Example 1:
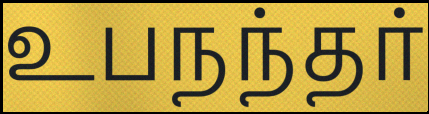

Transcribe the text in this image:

உபநந்தர்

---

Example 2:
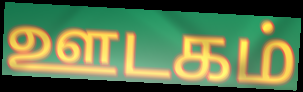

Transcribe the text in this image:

ஊடகம்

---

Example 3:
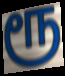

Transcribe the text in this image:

ரூ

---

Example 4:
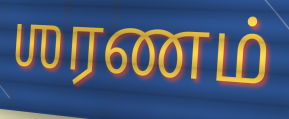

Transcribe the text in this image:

ஶரணம்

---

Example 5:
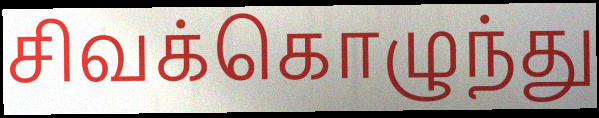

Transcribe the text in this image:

சிவக்கொழுந்து